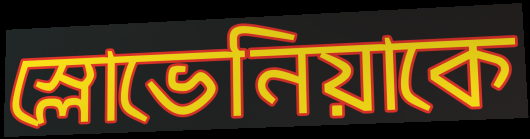
স্লোভেনিয়াকে